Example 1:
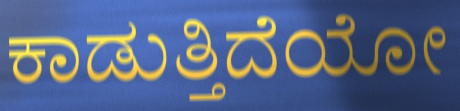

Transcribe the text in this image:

ಕಾಡುತ್ತಿದೆಯೋ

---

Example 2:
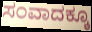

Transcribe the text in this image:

ಸಂವಾದಕ್ಕೂ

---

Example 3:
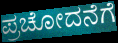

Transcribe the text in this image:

ಪ್ರಚೋದನೆಗೆ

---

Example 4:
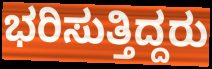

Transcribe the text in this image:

ಭರಿಸುತ್ತಿದ್ದರು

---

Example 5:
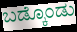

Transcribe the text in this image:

ಬಡ್ಕೊಂಡು